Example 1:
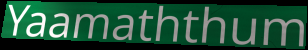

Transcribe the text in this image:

Yaamaththum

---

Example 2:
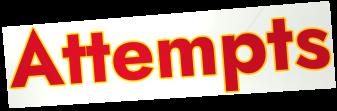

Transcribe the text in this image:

Attempts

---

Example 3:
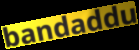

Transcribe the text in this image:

bandaddu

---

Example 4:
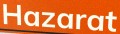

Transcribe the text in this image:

Hazarat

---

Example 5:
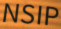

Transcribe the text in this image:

NSIP